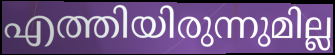
എത്തിയിരുന്നുമില്ല